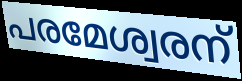
പരമേശ്വരന്